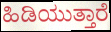
ಹಿಡಿಯುತ್ತಾರೆ